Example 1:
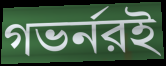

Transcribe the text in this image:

গভর্নরই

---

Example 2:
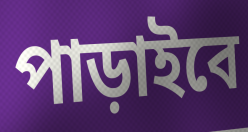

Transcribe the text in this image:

পাড়াইবে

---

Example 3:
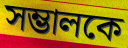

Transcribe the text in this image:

সম্ভালকে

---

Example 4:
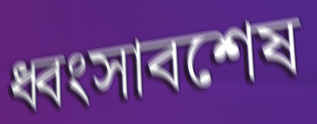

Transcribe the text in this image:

ধ্বংসাবশেষ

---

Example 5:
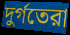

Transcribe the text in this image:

দুর্গতেরা